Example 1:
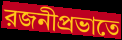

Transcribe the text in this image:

রজনীপ্রভাতে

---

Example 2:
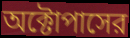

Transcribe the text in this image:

অক্টোপাসের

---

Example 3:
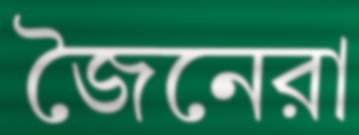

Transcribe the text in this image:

জৈনেরা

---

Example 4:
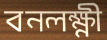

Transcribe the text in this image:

বনলক্ষ্ণী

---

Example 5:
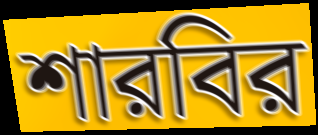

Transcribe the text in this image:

শারবির